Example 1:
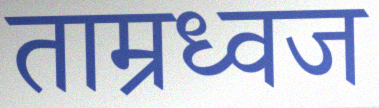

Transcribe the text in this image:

ताम्रध्वज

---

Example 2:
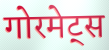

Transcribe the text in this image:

गोरमेट्स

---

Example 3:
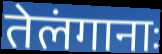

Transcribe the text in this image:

तेलंगानाः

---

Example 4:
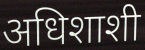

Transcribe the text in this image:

अधिशाशी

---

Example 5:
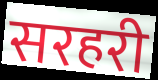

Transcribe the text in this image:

सरहरी